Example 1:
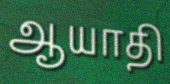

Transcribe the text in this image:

ஆயாதி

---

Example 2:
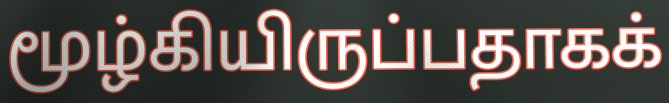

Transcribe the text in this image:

மூழ்கியிருப்பதாகக்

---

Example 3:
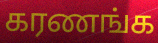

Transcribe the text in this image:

கரணங்க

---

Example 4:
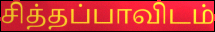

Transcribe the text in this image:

சித்தப்பாவிடம்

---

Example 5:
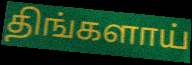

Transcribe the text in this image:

திங்களாய்